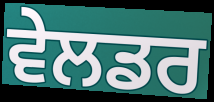
ਵੇਲਡਰ